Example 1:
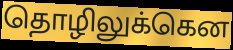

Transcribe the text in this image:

தொழிலுக்கென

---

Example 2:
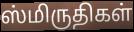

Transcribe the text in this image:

ஸ்மிருதிகள்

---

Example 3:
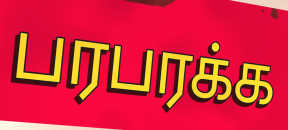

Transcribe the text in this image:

பரபரக்க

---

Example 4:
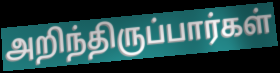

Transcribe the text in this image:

அறிந்திருப்பார்கள்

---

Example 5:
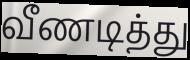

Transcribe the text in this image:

வீணடித்து